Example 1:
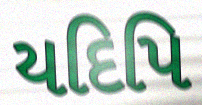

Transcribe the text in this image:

યદિપિ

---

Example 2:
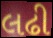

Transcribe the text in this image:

લઢી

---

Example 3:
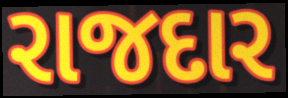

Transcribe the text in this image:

રાજદાર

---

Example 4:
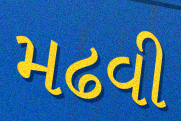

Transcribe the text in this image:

મઢવી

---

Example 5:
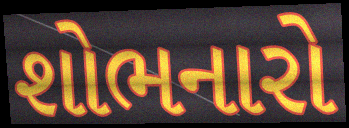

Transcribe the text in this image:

શોભનારો